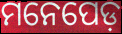
ମନେପେଡ଼